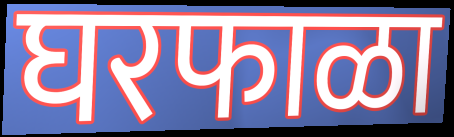
घरफाळा